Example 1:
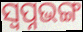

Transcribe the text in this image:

ସ୍ୱପ୍ନଭଙ୍ଗ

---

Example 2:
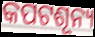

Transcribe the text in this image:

କପଟଶୂନ୍ୟ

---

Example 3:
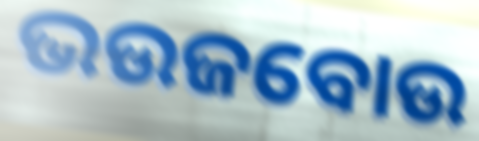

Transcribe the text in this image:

ଭଉଜବୋଉ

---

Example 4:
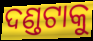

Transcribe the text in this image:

ଦଣ୍ଡଟାକୁ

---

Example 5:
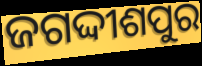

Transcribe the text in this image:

ଜଗଦ୍ଦୀଶପୁର